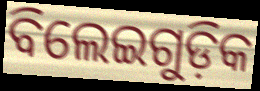
ବିଲେଇଗୁଡ଼ିକ